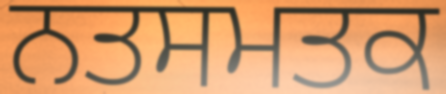
ਨਤਸਮਤਕ